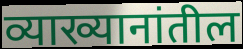
व्याख्यानांतील